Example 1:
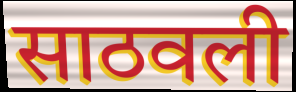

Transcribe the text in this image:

साठवली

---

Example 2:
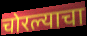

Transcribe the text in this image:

चोरल्याचा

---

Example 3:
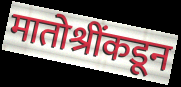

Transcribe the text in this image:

मातोश्रींकडून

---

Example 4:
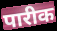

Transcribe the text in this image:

पारीक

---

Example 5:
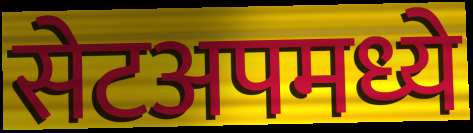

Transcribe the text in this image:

सेटअपमध्ये